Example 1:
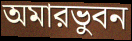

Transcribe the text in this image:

অমারভুবন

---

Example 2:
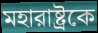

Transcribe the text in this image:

মহারাষ্ট্রকে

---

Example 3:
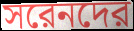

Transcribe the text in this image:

সরেনদের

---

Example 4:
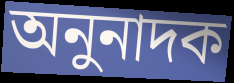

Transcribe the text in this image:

অনুনাদক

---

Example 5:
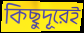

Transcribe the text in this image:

কিছুদূরেই